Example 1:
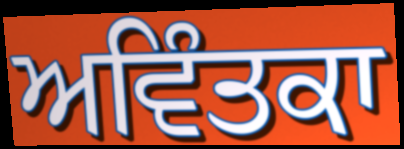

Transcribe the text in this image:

ਅਵਿੰਤਕਾ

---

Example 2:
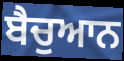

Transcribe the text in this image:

ਬੈਚੁਆਨ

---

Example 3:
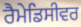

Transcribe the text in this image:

ਰੈਮੇਡਿਸੀਵਰ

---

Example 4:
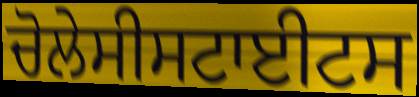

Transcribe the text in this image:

ਚੋਲੇਸੀਸਟਾਈਟਸ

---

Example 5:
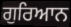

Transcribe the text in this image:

ਗੁਰਿਆਨ